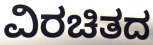
ವಿರಚಿತದ